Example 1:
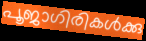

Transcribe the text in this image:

പൂജാഗിരികൾക്കു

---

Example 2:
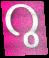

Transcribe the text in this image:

റു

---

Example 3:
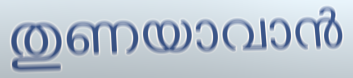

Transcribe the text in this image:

തുണയാവാൻ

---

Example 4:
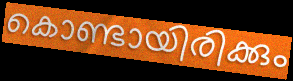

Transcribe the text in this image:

കൊണ്ടായിരിക്കും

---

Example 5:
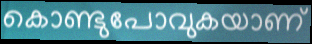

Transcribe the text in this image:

കൊണ്ടുപോവുകയാണ്